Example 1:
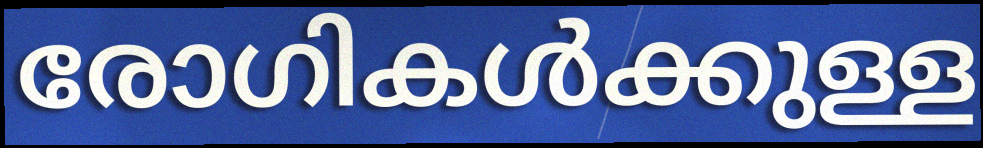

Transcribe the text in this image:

രോഗികൾക്കുള്ള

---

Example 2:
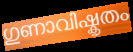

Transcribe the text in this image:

ഗുണാവിഷ്കൃതം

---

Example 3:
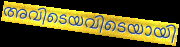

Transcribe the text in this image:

അവിടെയവിടെയായി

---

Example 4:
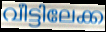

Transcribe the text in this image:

വീട്ടിലേക്ക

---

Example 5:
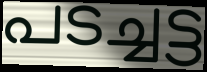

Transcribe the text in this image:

പടച്ചട്ട